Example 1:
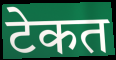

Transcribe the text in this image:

टेकत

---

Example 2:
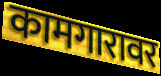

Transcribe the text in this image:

कामगारावर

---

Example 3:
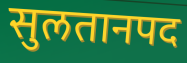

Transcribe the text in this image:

सुलतानपद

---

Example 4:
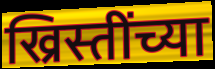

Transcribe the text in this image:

ख्रिस्तींच्या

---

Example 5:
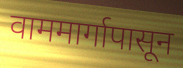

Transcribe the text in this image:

वाममार्गापासून